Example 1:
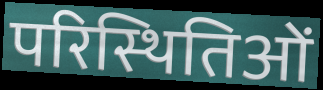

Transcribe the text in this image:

परिस्थितिओं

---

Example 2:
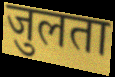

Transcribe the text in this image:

जुलता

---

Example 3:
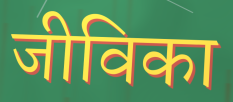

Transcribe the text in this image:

जीविका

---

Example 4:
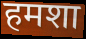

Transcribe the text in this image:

हमशा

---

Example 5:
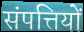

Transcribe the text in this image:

संपत्तियों